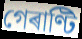
গেৰাণ্টি